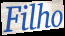
Filho